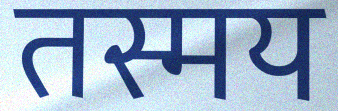
तस्मय